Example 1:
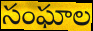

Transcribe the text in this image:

సంఘాల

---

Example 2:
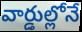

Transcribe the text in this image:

వార్డుల్లోనే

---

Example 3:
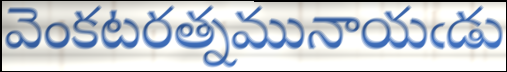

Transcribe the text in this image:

వెంకటరత్నమునాయఁడు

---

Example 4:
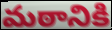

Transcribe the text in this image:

మఠానికి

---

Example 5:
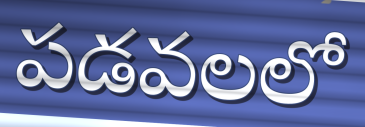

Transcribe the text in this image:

పడవలలో